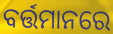
ବର୍ତ୍ତମାନରେ